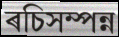
ৰচিসম্পন্ন